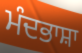
ਮੰਦਭਾਸ਼ਾ